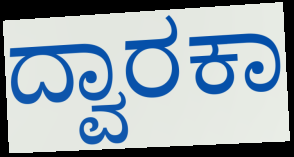
ದ್ವಾರಕಾ